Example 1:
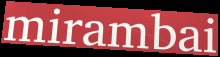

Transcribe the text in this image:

mirambai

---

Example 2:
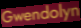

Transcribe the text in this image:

Gwendolyn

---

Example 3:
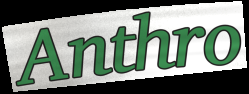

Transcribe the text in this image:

Anthro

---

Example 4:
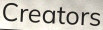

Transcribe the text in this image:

Creators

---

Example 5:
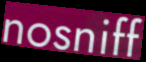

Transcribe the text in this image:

nosniff